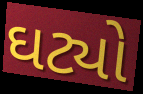
ઘટ્યો